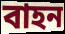
বাহন